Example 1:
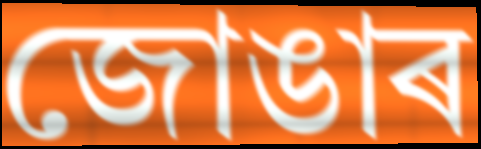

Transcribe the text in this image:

জোঙাৰ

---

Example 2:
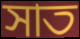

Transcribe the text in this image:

সাত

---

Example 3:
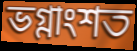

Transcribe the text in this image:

ভগ্নাংশত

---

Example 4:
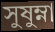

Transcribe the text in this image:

সুষুম্না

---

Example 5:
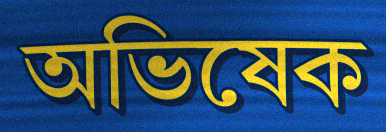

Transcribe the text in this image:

অভিষেক